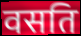
वसति